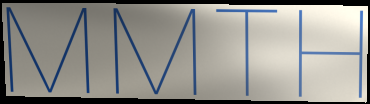
MMTH